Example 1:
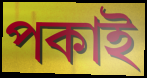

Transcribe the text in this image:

পকাই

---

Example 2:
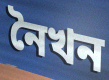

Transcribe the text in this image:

নৈখন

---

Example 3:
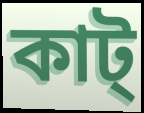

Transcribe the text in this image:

কাট্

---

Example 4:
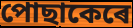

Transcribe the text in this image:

পোছাকেৰে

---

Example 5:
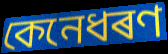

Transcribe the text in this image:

কেনেধৰণ